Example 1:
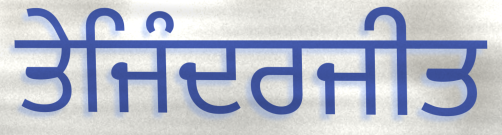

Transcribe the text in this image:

ਤੇਜਿੰਦਰਜੀਤ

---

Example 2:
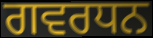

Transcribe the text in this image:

ਗਵਰਧਨ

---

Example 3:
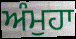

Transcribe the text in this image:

ਅੰਮੁਹਾ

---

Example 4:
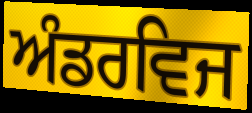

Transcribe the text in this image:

ਅੰਡਰਵਿਜ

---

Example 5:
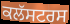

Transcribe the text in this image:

ਕਲੱਸਟਰਸ